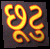
છૂટુ